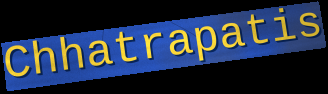
Chhatrapatis